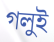
গলুই